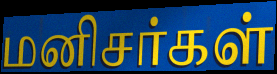
மனிசர்கள்